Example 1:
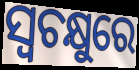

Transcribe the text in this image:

ସ୍ୱଚକ୍ଷୁରେ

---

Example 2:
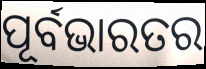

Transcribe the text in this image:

ପୂର୍ବଭାରତର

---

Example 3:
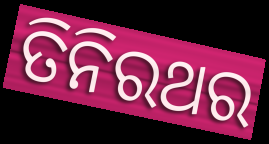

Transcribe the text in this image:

ତିନିରଥର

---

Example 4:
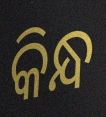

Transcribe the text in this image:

କିନ୍ଧ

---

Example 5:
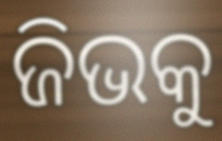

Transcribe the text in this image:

ଜିଭକୁ